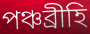
পঞ্চব্রীহি